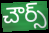
చౌర్స్